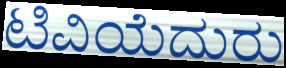
ಟಿವಿಯೆದುರು